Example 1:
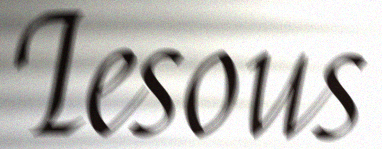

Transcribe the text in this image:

Iesous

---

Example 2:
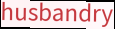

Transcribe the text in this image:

husbandry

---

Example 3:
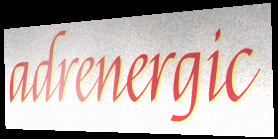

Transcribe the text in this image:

adrenergic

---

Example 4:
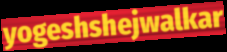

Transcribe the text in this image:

yogeshshejwalkar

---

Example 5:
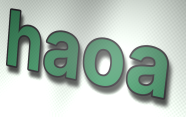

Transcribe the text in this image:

haoa